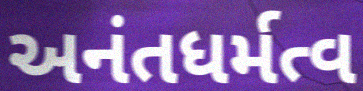
અનંતધર્મત્વ